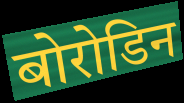
बोरोडिन